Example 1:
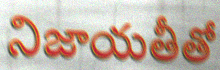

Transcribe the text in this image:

నిజాయతీతో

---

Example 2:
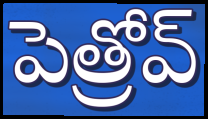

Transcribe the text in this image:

పెత్రోవ్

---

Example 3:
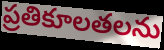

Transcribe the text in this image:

ప్రతికూలతలను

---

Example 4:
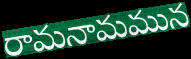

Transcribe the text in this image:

రామనామమున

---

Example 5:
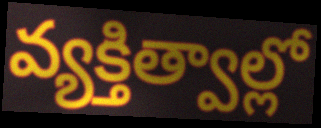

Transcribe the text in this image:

వ్యక్తిత్వాల్లో